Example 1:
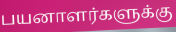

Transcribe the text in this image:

பயனாளர்களுக்கு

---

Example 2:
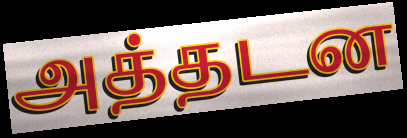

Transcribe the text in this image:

அத்தடன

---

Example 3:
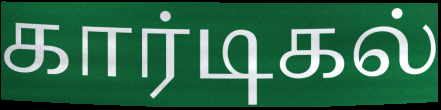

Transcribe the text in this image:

கார்டிகல்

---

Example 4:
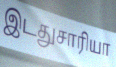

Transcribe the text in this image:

இடதுசாரியா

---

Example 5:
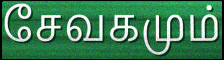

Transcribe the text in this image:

சேவகமும்